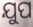
ଯୁପ